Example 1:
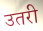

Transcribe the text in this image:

उतरी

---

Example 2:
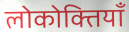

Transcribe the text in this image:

लोकोक्तियाँ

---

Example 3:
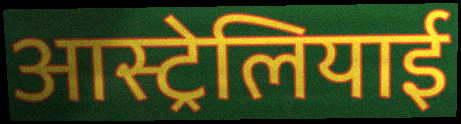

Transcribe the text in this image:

आस्ट्रेलियाई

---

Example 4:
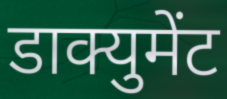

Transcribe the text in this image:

डाक्युमेंट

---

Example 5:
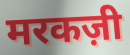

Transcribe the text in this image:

मरकज़ी